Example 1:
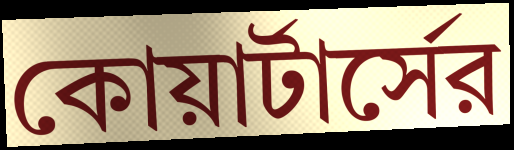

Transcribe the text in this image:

কোয়ার্টার্সের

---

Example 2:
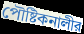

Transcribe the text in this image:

পৌষ্টিকনালীর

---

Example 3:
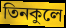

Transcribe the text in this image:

তিনকুলে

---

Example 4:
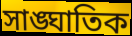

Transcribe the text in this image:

সাঙ্ঘাতিক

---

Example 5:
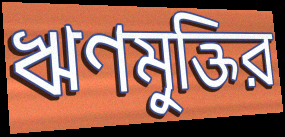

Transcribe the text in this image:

ঋণমুক্তির